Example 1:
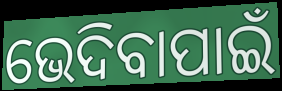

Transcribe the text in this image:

ଭେଦିବାପାଇଁ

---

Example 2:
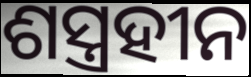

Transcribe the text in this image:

ଶସ୍ତ୍ରହୀନ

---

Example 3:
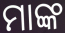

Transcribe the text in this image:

ମାଙ୍କ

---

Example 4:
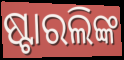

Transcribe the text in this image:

ଷ୍ଟାରଲିଙ୍କ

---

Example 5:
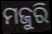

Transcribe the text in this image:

ମଜୁରି